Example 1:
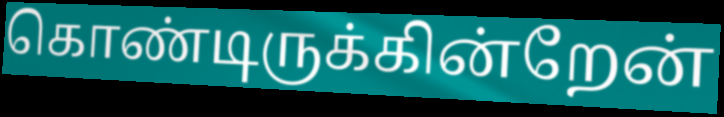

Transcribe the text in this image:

கொண்டிருக்கின்றேன்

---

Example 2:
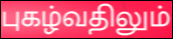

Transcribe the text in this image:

புகழ்வதிலும்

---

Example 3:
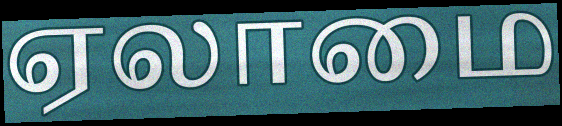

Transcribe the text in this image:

ஏலாமை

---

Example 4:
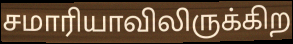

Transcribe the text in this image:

சமாரியாவிலிருக்கிற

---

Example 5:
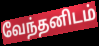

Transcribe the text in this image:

வேந்தனிடம்